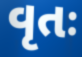
વૃતઃ